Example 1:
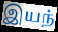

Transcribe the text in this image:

இயந்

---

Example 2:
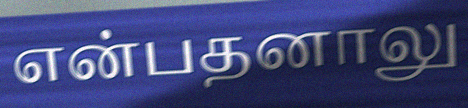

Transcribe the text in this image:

என்பதனாலு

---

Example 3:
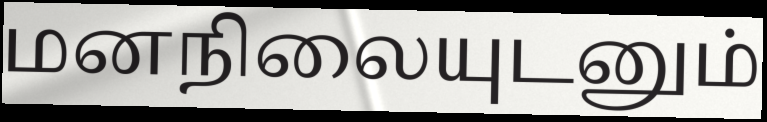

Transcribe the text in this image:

மனநிலையுடனும்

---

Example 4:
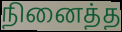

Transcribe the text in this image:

நினைத்த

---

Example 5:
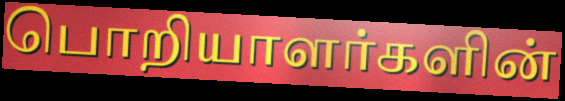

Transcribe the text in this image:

பொறியாளர்களின்